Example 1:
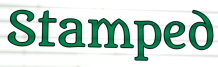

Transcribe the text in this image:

Stamped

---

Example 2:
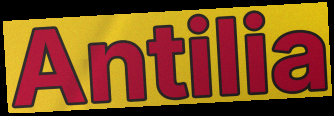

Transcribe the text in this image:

Antilia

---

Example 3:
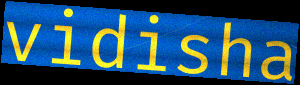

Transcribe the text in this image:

vidisha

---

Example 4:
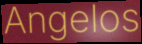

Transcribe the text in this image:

Angelos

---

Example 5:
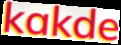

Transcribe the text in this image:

kakde